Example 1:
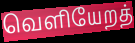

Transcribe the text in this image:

வெளியேறத்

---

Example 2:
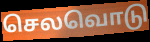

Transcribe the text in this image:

செலவொடு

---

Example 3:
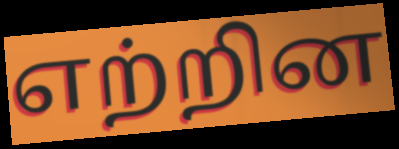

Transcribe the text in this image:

எற்றின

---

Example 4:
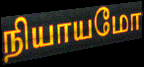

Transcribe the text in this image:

நியாயமோ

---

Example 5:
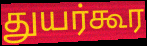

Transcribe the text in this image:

துயர்கூர